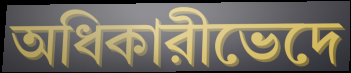
অধিকারীভেদে